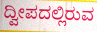
ದ್ವೀಪದಲ್ಲಿರುವ